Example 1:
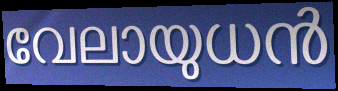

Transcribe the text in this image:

വേലായുധൻ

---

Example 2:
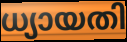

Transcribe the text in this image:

ധ്യായതി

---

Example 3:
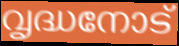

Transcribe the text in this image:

വൃദ്ധനോട്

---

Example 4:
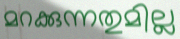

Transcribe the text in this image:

മറക്കുന്നതുമില്ല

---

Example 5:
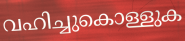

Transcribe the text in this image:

വഹിച്ചുകൊള്ളുക